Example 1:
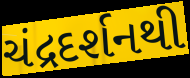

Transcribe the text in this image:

ચંદ્રદર્શનથી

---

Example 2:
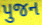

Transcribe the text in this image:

પુજન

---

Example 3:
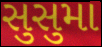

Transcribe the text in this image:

સુસુમા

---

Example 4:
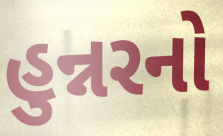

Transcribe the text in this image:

હુન્નરનો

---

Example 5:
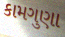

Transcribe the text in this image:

કામગુણા